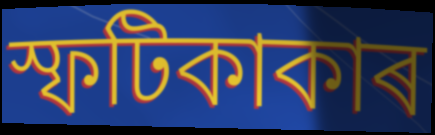
স্ফটিকাকাৰ